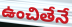
ఉంచితేనే